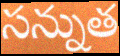
సన్నుత